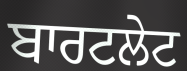
ਬਾਰਟਲੇਟ